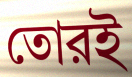
তোরই